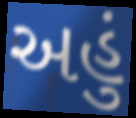
અહું